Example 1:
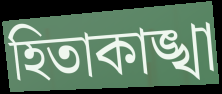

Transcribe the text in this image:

হিতাকাঙ্খা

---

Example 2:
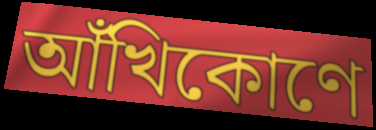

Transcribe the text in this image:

আঁখিকোণে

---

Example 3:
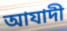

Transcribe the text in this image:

আযাদী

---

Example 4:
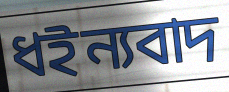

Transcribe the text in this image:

ধইন্যবাদ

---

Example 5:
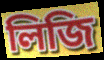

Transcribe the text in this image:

লিজি